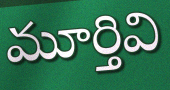
మూర్తివి